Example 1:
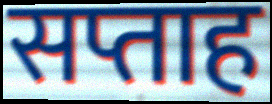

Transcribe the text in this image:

सप्ताह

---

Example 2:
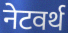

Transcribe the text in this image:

नेटवर्थ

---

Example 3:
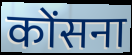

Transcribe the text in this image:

कोंसना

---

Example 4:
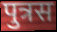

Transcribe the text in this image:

पुत्रस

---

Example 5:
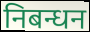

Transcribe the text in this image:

निबन्धन